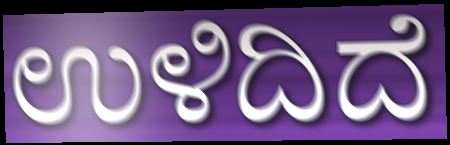
ಉಳಿದಿದೆ